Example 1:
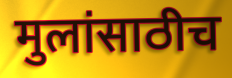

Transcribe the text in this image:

मुलांसाठीच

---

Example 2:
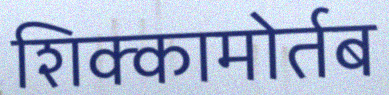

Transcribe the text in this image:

शिक्‍कामोर्तब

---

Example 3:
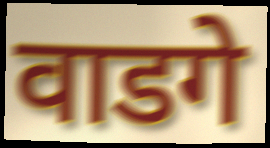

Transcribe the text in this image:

वाडगे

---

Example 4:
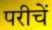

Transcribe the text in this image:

परीचें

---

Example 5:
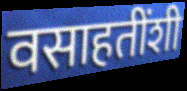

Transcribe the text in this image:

वसाहतींशी